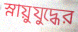
স্নায়ুযুদ্ধের